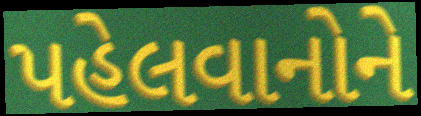
પહેલવાનોને